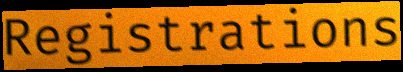
Registrations